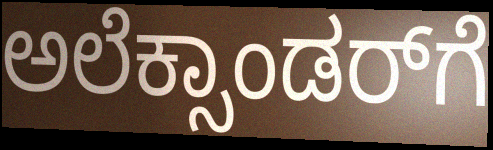
ಅಲೆಕ್ಸಾಂಡರ್‌ಗೆ